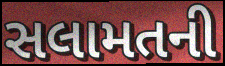
સલામતની